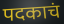
पदकाचं